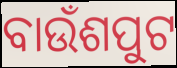
ବାଉଁଶପୁଟ